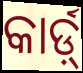
କାର୍ଡ଼୍